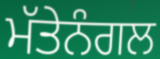
ਮੱਤੇਨੰਗਲ